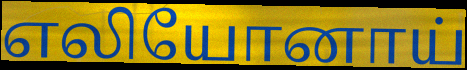
எலியோனாய்